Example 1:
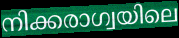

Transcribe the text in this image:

നിക്കരാഗ്വയിലെ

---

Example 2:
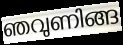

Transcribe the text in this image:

ഞവുണിങ്ങ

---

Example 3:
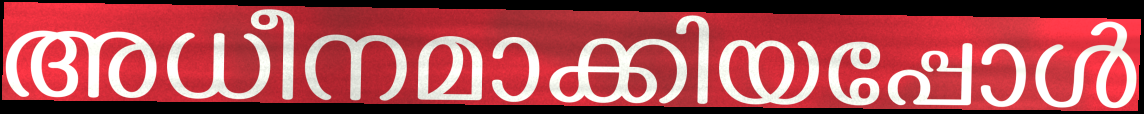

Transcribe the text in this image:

അധീനമാക്കിയപ്പോൾ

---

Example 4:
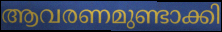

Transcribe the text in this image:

ആവരണമുണ്ടാക്കി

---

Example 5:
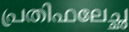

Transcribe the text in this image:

പ്രതിഫലേച്ഛ